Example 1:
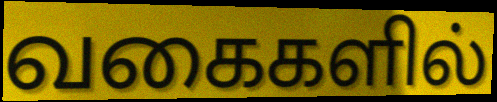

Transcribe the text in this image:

வகைகளில்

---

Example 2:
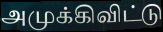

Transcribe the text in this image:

அமுக்கிவிட்டு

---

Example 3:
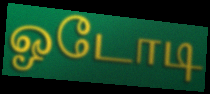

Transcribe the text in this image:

ஓடோடி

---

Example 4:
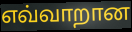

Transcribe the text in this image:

எவ்வாறான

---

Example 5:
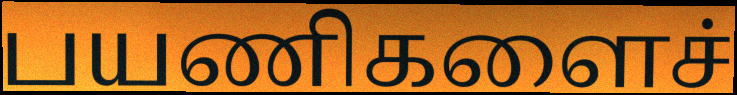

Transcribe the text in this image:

பயணிகளைச்